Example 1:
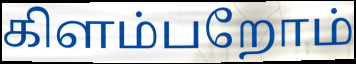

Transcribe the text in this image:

கிளம்பறோம்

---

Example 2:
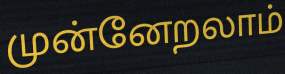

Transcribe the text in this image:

முன்னேறலாம்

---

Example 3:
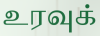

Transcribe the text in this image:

உரவுக்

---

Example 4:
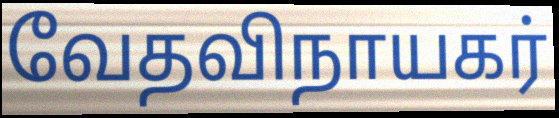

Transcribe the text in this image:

வேதவிநாயகர்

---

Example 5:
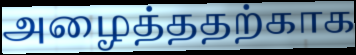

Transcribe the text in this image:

அழைத்ததற்காக